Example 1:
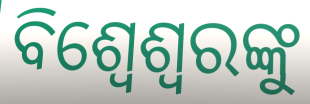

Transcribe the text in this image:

ବିଶ୍ୱେଶ୍ୱରଙ୍କୁ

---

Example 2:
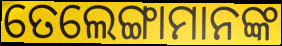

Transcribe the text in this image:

ତେଲେଙ୍ଗାମାନଙ୍କ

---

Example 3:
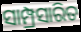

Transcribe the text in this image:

ସାମ୍ପ୍ରସାରିତ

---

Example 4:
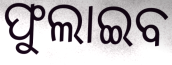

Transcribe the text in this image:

ଫୁଲାଇବ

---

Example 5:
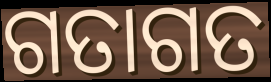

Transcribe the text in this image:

ଗତାଗତ